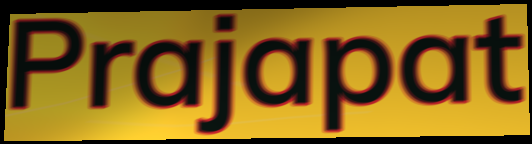
Prajapat